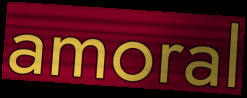
amoral